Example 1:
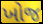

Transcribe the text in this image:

ખોજ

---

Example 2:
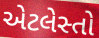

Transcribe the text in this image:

એટલેસ્તો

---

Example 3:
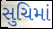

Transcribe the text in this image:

સુચિમાં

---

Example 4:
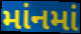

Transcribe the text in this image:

માંનમાં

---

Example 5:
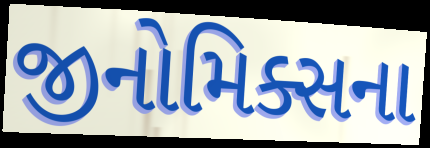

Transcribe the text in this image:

જીનોમિક્સના